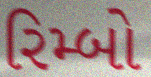
રિમ્બો